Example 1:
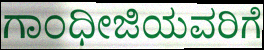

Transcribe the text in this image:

ಗಾಂಧೀಜಿಯವರಿಗೆ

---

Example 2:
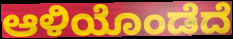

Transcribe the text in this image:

ಆಳಿಯೊಂಡೆದೆ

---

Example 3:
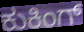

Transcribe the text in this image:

ಕುಕಿಂಗ್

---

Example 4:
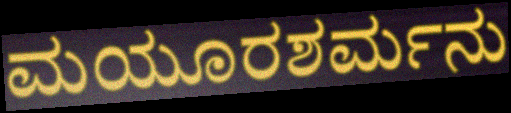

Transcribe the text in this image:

ಮಯೂರಶರ್ಮನು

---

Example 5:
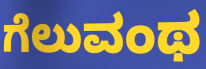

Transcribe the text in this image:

ಗೆಲುವಂಥ